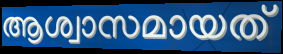
ആശ്വാസമായത്